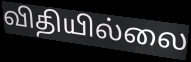
விதியில்லை